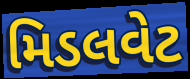
મિડલવેટ